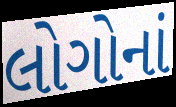
લોગોનાં